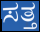
ಸತ್ತ